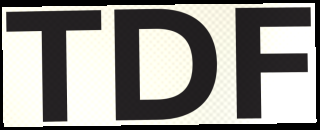
TDF